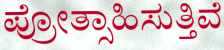
ಪ್ರೋತ್ಸಾಹಿಸುತ್ತಿವೆ